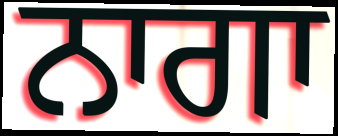
ਨਾਗਾ